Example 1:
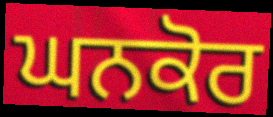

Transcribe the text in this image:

ਘਨਕੋਰ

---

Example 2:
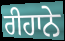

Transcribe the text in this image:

ਰੀਹਾਨੇ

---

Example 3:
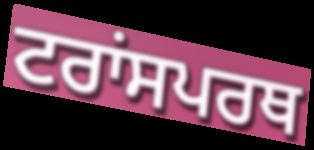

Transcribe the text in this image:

ਟਰਾਂਸਪਰਥ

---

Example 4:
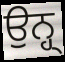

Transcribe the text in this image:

ਉਨ੍ਹ੍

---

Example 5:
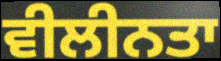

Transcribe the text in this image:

ਵੀਲੀਨਤਾ